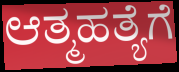
ಆತ್ಮಹತ್ಯೆಗೆ